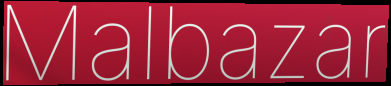
Malbazar